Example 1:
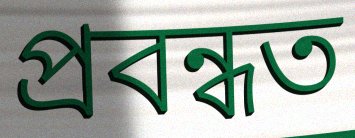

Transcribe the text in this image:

প্ৰবন্ধত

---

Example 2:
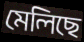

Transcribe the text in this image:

মেলিছে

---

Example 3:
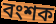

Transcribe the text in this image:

বংশক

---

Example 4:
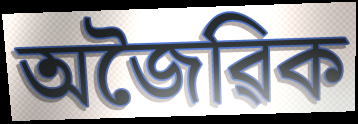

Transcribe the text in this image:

অজৈৱিক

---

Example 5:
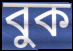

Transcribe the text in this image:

বুক